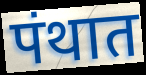
पंथात